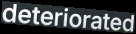
deteriorated